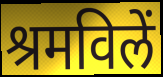
श्रमविलें